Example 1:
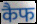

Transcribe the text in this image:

कैफ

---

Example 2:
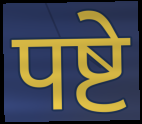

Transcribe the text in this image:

पष्टे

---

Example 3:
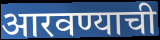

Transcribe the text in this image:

आरवण्याची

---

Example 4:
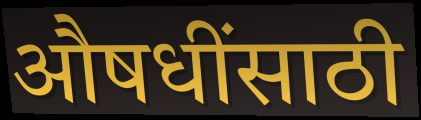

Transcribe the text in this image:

औषधींसाठी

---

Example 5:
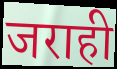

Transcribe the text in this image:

जराही